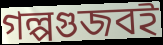
গল্পগুজবই